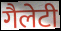
गैलेटी